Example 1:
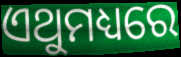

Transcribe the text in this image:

ଏଥୁମଧ୍ୟରେ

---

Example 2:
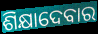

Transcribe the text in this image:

ଶିକ୍ଷାଦେବାର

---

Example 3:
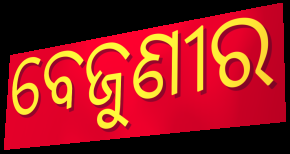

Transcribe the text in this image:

ବେଜୁଣୀର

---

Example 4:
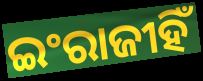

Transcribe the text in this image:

ଇଂରାଜୀହିଁ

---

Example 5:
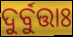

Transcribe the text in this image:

ଦୁର୍ବୁତ୍ତାଃ